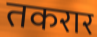
तकरार